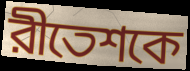
রীতেশকে